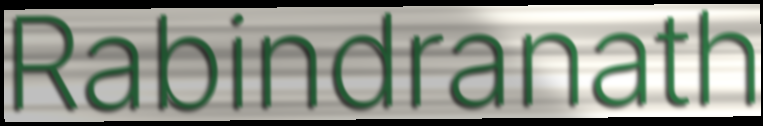
Rabindranath